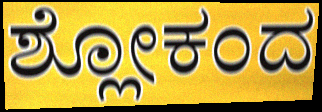
ಶ್ಲೋಕಂದ